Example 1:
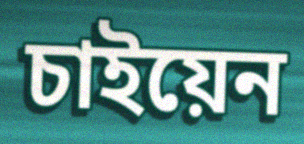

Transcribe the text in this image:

চাইয়েন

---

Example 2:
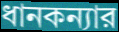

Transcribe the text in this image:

ধানকন্যার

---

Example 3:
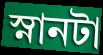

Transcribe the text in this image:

স্নানটা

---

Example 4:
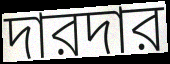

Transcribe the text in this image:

দারদার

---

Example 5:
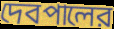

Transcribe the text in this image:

দেবপালের